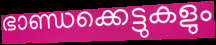
ഭാണ്ഡക്കെട്ടുകളും